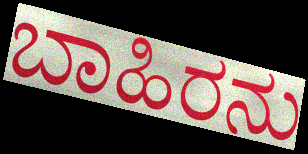
ಬಾಹಿರನು